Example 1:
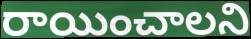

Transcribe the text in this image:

రాయించాలని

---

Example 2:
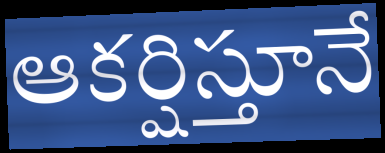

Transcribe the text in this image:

ఆకర్షిస్తూనే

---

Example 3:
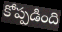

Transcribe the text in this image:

కోప్పడింది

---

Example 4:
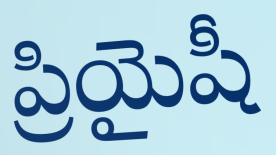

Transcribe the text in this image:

ప్రియైషీ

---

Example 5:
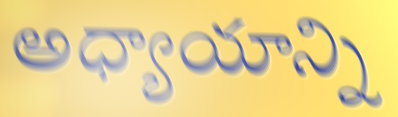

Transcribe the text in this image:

అధ్యాయాన్ని